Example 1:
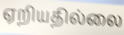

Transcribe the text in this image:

ஏறியதில்லை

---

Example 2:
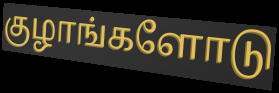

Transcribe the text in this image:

குழாங்களோடு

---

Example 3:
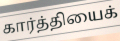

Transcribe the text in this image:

கார்த்தியைக்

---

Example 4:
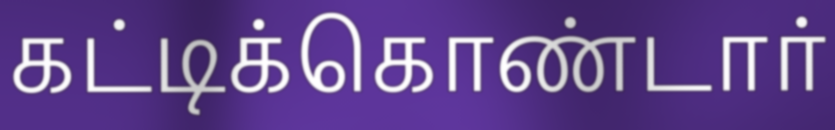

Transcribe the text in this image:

கட்டிக்கொண்டார்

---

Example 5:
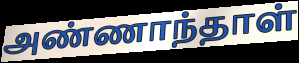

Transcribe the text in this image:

அண்ணாந்தாள்